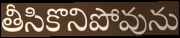
తీసికొనిపోవును